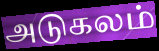
அடுகலம்